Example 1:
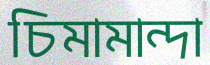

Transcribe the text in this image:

চিমামান্দা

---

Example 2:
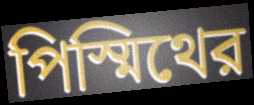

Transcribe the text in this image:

পিস্মিথের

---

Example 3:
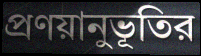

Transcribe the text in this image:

প্রণয়ানুভূতির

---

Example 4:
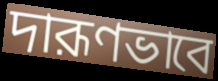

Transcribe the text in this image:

দারূণভাবে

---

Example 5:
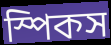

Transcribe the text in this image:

স্পিকস